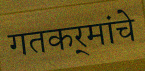
गतकर्मांचे